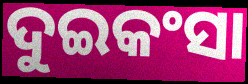
ଦୁଇକଂସା